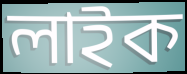
লাইক